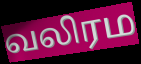
வலிரம